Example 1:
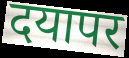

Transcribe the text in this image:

दयापर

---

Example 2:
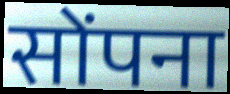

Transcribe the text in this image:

सोंपना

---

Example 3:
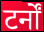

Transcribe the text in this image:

टर्नों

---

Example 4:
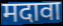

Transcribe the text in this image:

मदावा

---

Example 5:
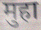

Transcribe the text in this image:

मुहा